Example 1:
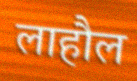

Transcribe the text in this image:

लाहौल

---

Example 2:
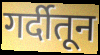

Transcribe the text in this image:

गर्दीतून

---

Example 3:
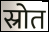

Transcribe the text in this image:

स्रोत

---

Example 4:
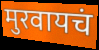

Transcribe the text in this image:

मुरवायचं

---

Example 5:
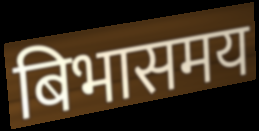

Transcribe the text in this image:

बिभासमय